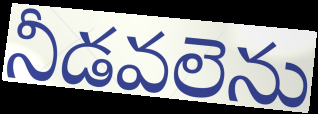
నీడవలెను